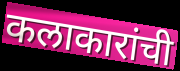
कलाकारांची